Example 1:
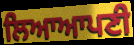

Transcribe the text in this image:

ਲਿਆਆਪਣੀ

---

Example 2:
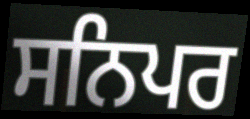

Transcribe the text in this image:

ਸਨਿਪਰ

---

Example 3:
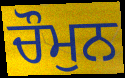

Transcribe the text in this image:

ਚੌਮੁਨ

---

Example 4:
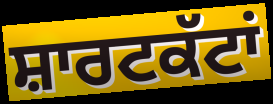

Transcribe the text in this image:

ਸ਼ਾਰਟਕੱਟਾਂ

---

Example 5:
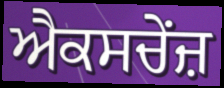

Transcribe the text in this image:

ਐਕਸਚੇਂਜ਼